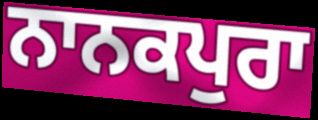
ਨਾਨਕਪੁਰਾ